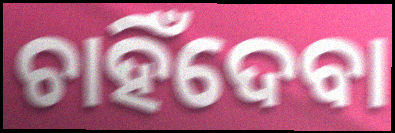
ଚାହିଁଦେବା